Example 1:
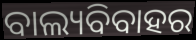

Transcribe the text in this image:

ବାଲ୍ୟବିବାହର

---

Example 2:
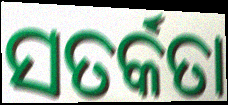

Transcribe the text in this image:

ସତର୍କତା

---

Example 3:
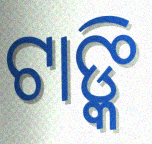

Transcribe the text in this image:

ଟାଙ୍କି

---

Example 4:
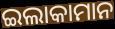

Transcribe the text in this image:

ଇଲାକାମାନ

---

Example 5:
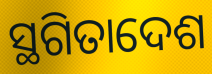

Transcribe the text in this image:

ସ୍ଥଗିତାଦେଶ